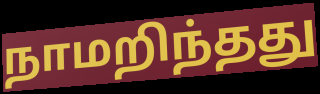
நாமறிந்தது